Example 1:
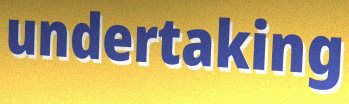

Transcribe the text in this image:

undertaking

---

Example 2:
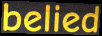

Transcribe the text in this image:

belied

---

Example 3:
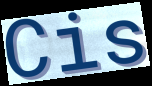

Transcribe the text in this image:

Cis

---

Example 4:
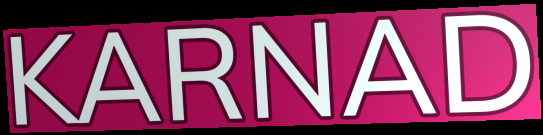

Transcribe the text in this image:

KARNAD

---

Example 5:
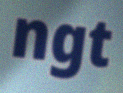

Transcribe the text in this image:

ngt